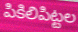
పికిలిపిట్టల